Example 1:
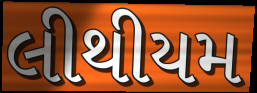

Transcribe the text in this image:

લીથીયમ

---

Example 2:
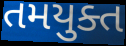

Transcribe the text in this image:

તમયુક્ત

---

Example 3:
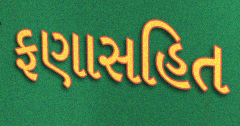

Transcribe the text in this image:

ફણાસહિત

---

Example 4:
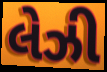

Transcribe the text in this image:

લેઝી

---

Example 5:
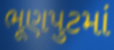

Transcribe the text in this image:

ભૂણપુટમાં